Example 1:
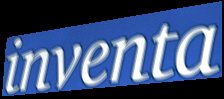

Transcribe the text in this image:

inventa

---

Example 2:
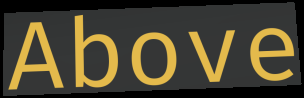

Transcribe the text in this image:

Above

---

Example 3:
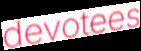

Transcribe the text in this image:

devotees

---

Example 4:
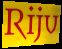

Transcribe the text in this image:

Riju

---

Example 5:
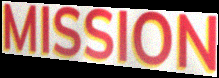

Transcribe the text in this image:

MISSION